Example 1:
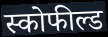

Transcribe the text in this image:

स्कोफील्ड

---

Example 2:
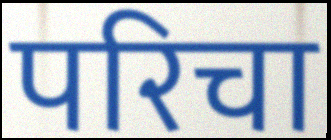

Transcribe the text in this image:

परिचा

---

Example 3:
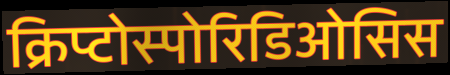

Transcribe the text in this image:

क्रिप्टोस्पोरिडिओसिस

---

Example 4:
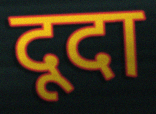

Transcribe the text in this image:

दूदा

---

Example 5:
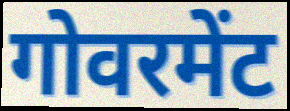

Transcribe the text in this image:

गोवरमेंट